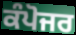
ਕੰਪੋਜਰ